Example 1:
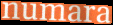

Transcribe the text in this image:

numara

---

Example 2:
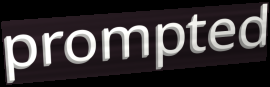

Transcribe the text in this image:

prompted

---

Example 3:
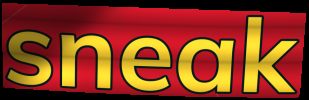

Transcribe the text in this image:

sneak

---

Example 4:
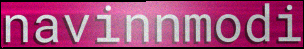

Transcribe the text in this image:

navinnmodi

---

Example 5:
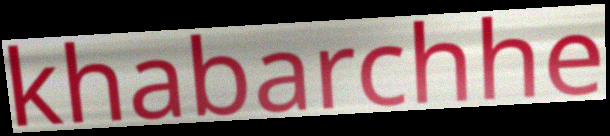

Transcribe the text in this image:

khabarchhe